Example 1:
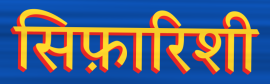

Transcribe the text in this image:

सिफ़ारिशी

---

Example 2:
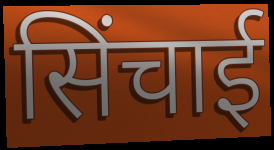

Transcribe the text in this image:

सिंचाई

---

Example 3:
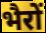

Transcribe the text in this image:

भैरों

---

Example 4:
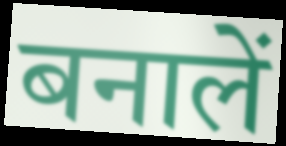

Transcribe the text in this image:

बनालें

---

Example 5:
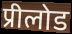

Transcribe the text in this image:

प्रीलोड